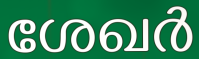
ശേഖർ